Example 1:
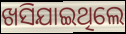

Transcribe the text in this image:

ଖସିଯାଇଥିଲେ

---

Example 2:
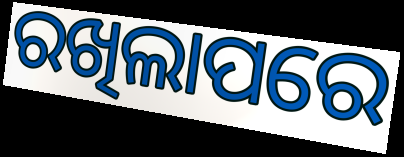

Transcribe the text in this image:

ରଖିଲାପରେ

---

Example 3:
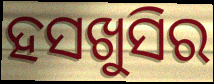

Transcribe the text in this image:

ହସଖୁସିର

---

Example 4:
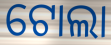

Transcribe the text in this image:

ଟୋଲା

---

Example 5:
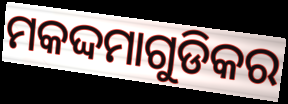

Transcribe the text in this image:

ମକଦ୍ଦମାଗୁଡିକର